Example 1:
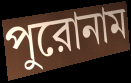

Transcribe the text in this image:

পুরোনাম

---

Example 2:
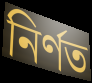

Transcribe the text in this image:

নির্ণত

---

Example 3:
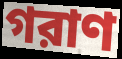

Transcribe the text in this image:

গরাণ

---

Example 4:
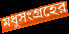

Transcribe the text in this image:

মধুসংগ্রহের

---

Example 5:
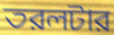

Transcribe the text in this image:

তরলটার